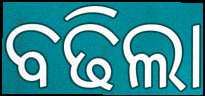
ବଢିଲା